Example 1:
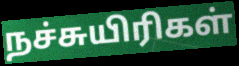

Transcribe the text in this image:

நச்சுயிரிகள்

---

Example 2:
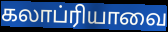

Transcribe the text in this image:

கலாப்ரியாவை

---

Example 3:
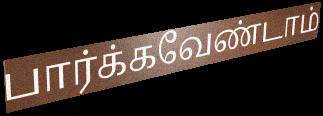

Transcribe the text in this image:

பார்க்கவேண்டாம்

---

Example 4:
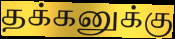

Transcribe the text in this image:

தக்கனுக்கு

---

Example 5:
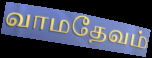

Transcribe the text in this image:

வாமதேவம்